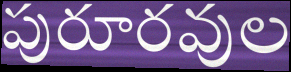
పురూరవుల